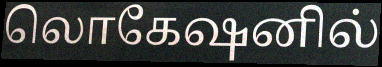
லொகேஷனில்